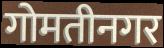
गोमतीनगर